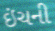
ઇંચની